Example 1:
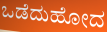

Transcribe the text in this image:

ಒಡೆದುಹೋದ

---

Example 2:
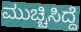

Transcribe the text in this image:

ಮುಚ್ಚಿಸಿದ್ದೆ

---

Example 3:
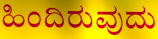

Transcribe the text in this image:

ಹಿಂದಿರುವುದು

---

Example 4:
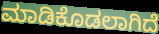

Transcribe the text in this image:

ಮಾಡಿಕೊಡಲಾಗಿದೆ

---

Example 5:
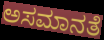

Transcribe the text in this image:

ಅಸಮಾನತೆ